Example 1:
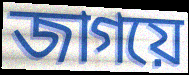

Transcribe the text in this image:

জাগয়ে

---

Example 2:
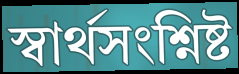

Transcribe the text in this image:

স্বার্থসংশ্নিষ্ট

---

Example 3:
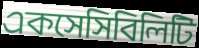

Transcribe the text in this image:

একসেসিবিলিটি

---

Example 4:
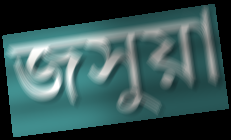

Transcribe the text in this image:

জসুয়া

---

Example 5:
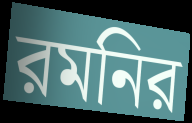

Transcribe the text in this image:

রমনির